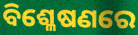
ବିଶ୍ଳେଷଣରେ